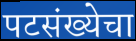
पटसंख्येचा